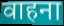
वाहना